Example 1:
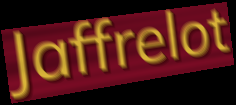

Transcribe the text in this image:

Jaffrelot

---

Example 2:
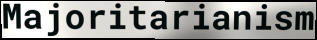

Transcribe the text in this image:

Majoritarianism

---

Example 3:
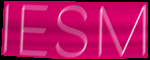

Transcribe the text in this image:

IESM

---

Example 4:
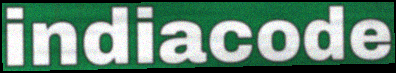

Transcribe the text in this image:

indiacode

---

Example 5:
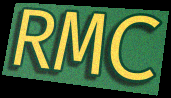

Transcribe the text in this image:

RMC